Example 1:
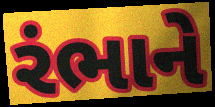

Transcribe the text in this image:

રંભાને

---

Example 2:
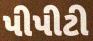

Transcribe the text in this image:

પીપીટી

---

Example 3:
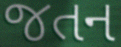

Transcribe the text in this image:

જતન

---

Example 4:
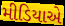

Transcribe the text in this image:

મીડિયાએ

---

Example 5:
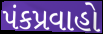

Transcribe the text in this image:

પંકપ્રવાહો